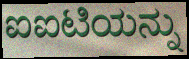
ಐಐಟಿಯನ್ನು